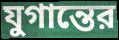
যুগান্তের